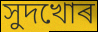
সুদখোৰ